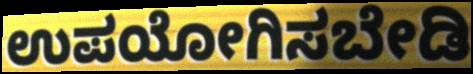
ಉಪಯೋಗಿಸಬೇಡಿ